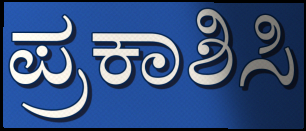
ಪ್ರಕಾಶಿಸಿ